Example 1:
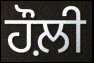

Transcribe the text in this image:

ਹੌਲ਼ੀ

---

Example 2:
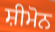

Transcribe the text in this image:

ਸ਼ੀਮੋਨ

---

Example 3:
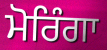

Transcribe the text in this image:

ਮੋਰਿੰਗਾ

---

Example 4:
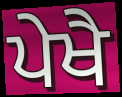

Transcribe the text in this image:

ਪੇਖੈ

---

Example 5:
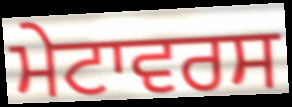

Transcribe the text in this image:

ਮੇਟਾਵਰਸ